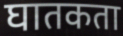
घातकता